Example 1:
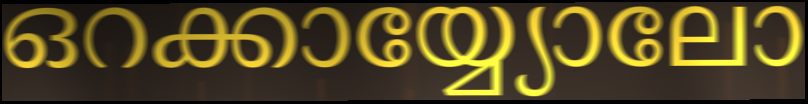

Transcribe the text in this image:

ഒറക്കായ്യ്യോലോ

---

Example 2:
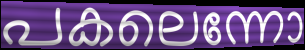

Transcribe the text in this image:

പകലെന്നോ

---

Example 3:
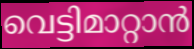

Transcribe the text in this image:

വെട്ടിമാറ്റാൻ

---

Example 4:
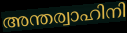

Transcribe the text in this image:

അന്തര്വാഹിനി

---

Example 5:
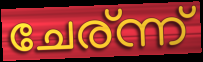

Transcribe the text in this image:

ചേര്ന്ന്